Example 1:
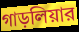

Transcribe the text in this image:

গাড়লিয়ার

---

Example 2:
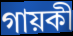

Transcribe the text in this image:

গায়কী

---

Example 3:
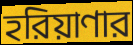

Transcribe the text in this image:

হরিয়াণার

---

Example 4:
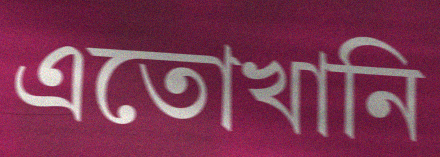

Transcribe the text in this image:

এতোখানি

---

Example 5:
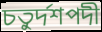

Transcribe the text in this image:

চতুর্দশপদী